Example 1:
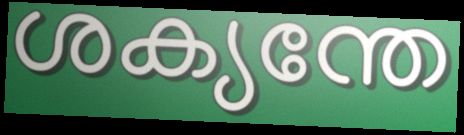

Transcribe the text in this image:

ശക്യന്തേ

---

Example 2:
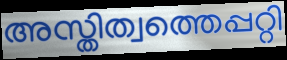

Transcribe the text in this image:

അസ്തിത്വത്തെപ്പറ്റി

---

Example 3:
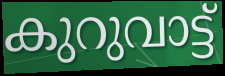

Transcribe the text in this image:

കുറുവാട്ട്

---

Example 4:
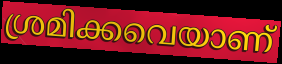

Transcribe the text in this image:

ശ്രമിക്കവെയാണ്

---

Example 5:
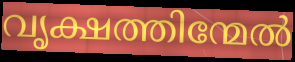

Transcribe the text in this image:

വൃക്ഷത്തിന്മേൽ